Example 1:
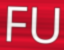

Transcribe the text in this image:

FU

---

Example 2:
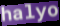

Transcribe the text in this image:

halyo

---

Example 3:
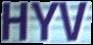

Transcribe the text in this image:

HYV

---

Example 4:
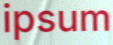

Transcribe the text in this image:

ipsum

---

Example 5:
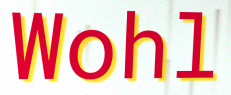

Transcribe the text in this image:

Wohl